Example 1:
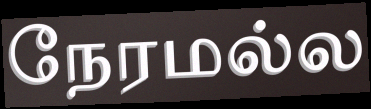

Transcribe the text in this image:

நேரமல்ல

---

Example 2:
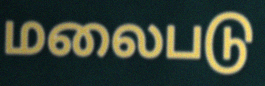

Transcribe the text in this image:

மலைபடு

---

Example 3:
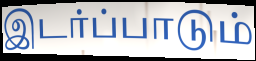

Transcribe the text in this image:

இடர்ப்பாடும்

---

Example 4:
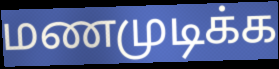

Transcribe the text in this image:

மணமுடிக்க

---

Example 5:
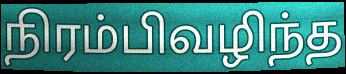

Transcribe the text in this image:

நிரம்பிவழிந்த